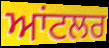
ਆਂਟਲਰ